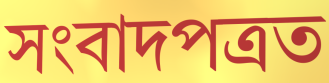
সংবাদপত্ৰত